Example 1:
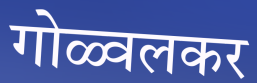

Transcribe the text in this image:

गोळ्वलकर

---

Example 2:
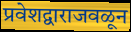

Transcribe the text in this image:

प्रवेशद्वाराजवळून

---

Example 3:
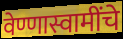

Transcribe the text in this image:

वेण्णास्वामींचे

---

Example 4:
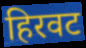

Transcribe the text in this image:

हिरवट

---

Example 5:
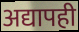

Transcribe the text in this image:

अद्यापही